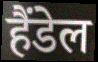
हैंडेल